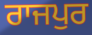
ਰਾਜਪੁਰ